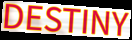
DESTINY